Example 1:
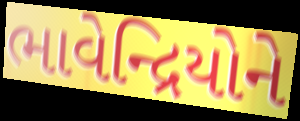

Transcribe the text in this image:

ભાવેન્દ્રિયોને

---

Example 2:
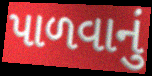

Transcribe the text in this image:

પાળવાનું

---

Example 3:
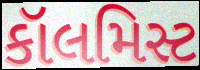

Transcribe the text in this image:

કૉલમિસ્ટ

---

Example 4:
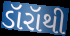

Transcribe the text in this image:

ડૉરૉથી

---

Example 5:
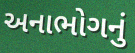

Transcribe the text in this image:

અનાભોગનું